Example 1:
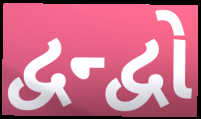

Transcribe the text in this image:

દ્વન્દ્વો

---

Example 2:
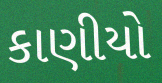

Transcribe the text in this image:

કાણીયો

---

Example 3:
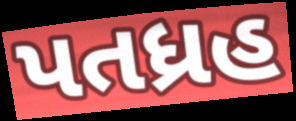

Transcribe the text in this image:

પતધ્રહ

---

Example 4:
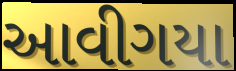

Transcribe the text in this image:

આવીગયા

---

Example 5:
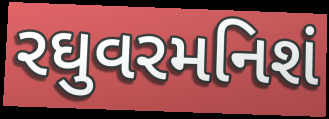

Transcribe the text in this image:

રઘુવરમનિશં